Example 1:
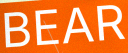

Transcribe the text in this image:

BEAR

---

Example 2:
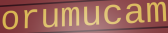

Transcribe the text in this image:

orumucam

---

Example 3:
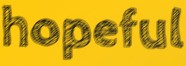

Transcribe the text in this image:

hopeful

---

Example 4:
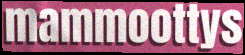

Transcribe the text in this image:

mammoottys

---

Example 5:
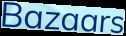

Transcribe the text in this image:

Bazaars